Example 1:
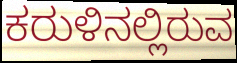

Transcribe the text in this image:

ಕರುಳಿನಲ್ಲಿರುವ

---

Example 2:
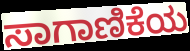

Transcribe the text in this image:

ಸಾಗಾಣಿಕೆಯ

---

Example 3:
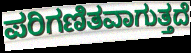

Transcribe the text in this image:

ಪರಿಗಣಿತವಾಗುತ್ತದೆ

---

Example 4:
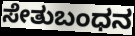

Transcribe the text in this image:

ಸೇತುಬಂಧನ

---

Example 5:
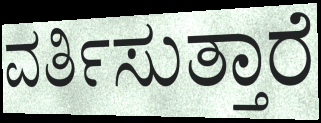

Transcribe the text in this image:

ವರ್ತಿಸುತ್ತಾರೆ